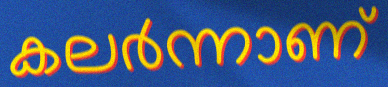
കലർന്നാണ്